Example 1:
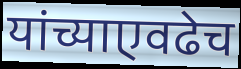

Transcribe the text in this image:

यांच्याएवढेच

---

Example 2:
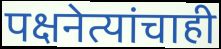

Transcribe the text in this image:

पक्षनेत्यांचाही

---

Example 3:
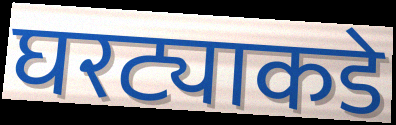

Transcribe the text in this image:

घरट्याकडे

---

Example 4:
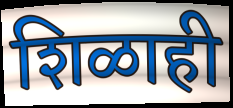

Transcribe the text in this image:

शिळाही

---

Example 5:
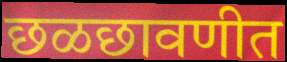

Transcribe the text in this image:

छळछावणीत